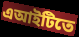
এআইটিতে